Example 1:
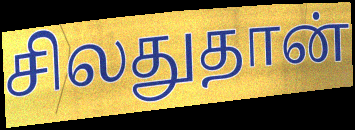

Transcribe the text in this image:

சிலதுதான்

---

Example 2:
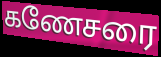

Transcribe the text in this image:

கணேசரை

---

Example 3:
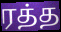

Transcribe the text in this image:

ரத்த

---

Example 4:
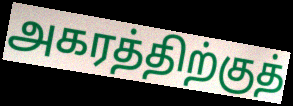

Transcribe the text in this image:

அகரத்திற்குத்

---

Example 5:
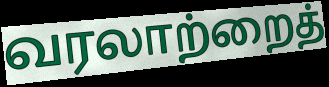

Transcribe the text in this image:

வரலாற்றைத்